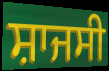
ਸ਼ਾਜਸੀ